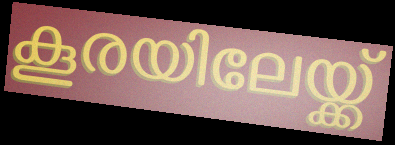
കൂരയിലേയ്ക്ക്